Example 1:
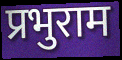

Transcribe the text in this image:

प्रभुराम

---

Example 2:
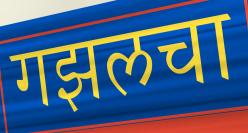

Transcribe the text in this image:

गझलचा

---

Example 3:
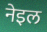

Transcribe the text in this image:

नेइल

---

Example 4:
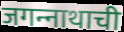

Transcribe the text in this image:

जगन्नाथाची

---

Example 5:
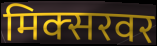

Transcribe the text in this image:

मिक्‍सरवर